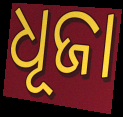
ଧୂଜା